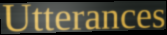
Utterances